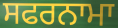
ਸਫਰਨਾਮਾ